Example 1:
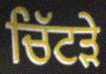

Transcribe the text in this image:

ਚਿੱਟੜੇ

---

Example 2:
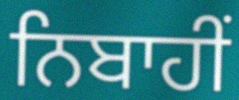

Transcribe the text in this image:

ਨਿਬਾਹੀਂ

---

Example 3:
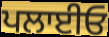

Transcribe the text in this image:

ਪਲਾਈਓ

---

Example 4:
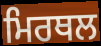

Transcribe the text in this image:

ਮਿਰਥਲ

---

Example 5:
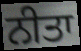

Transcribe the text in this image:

ਨੀਤਾ